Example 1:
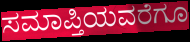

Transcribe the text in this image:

ಸಮಾಪ್ತಿಯವರೆಗೂ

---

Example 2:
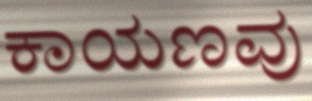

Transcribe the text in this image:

ಕಾಯಣವು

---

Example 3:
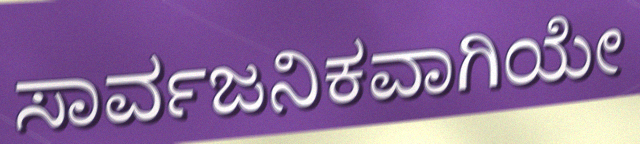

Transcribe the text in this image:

ಸಾರ್ವಜನಿಕವಾಗಿಯೇ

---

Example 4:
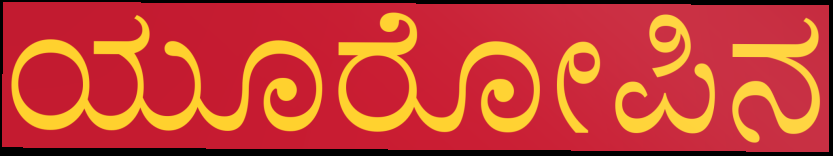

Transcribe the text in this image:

ಯೂರೋಪಿನ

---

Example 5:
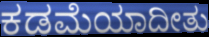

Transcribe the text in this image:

ಕಡಮೆಯಾದೀತು